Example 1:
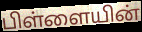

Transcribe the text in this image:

பிள்ளையின்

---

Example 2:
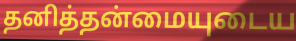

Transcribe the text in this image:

தனித்தன்மையுடைய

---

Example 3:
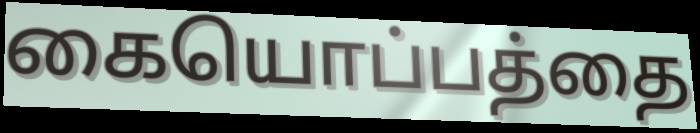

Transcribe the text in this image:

கையொப்பத்தை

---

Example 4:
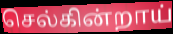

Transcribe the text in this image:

செல்கின்றாய்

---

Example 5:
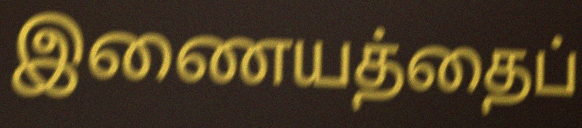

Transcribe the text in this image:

இணையத்தைப்